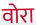
वोरा